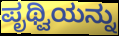
ಪೃಥ್ವಿಯನ್ನು